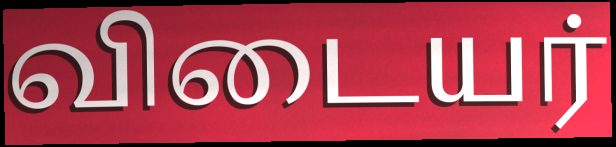
விடையர்